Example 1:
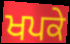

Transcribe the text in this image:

ਖਪਕੇ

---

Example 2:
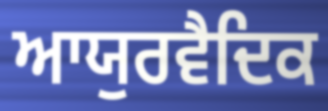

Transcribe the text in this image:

ਆਯੁਰਵੈਦਿਕ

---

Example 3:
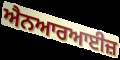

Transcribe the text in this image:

ਐਨਆਰਆਈਜ਼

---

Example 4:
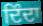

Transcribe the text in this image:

ਦਿੰਦਾ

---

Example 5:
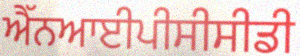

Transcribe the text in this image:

ਐੱਨਆਈਪੀਸੀਸੀਡੀ